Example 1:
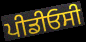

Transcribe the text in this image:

ਪੀਡੀਓਸੀ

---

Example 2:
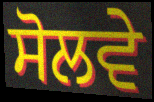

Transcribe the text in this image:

ਸੋਲਵੇ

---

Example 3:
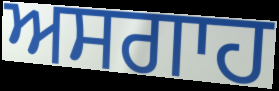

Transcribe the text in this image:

ਅਸਗਾਹ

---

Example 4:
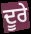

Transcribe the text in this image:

ਦੂਰੇ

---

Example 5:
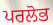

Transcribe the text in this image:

ਪਰਲੋਭ